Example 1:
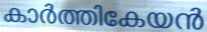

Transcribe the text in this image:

കാർത്തികേയൻ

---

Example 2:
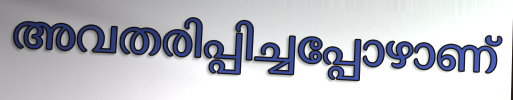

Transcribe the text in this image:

അവതരിപ്പിച്ചപ്പോഴാണ്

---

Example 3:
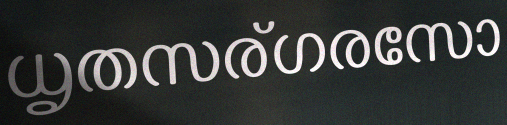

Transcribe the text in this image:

ധൃതസര്ഗരസോ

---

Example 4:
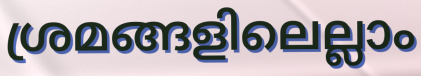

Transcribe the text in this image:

ശ്രമങ്ങളിലെല്ലാം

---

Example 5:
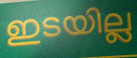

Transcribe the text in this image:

ഇടയില്ല